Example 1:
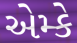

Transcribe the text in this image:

એમ્કે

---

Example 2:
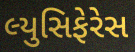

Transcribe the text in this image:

લ્યુસિફેરેસ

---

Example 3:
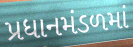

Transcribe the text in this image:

પ્રધાનમંડળમાં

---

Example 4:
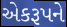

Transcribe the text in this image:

એકરૂપને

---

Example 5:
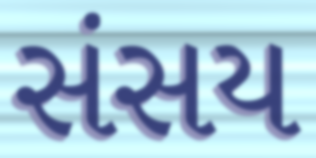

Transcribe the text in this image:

સંસય